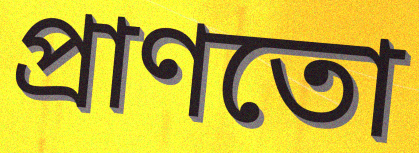
প্রাণতো